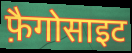
फ़ैगोसाइट